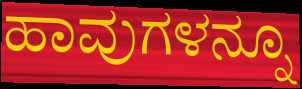
ಹಾವುಗಳನ್ನೂ